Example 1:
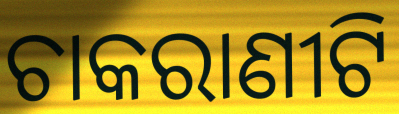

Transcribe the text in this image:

ଚାକରାଣୀଟି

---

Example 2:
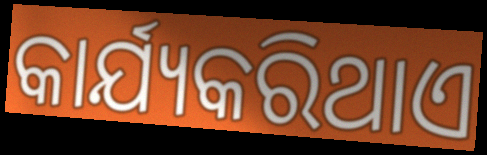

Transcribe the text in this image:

କାର୍ଯ୍ୟକରିଥାଏ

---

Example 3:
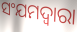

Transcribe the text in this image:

ସଂଯମଦ୍ୱାରା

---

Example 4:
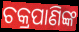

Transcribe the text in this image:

ଚକ୍ରପାଣିଙ୍କ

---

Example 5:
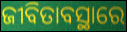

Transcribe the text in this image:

ଜୀବିତାବସ୍ଥାରେ